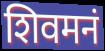
शिवमनं